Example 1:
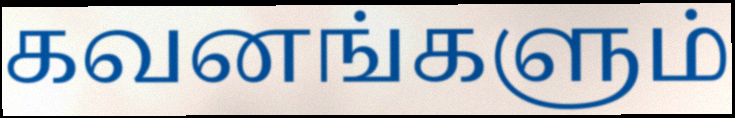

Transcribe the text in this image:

கவனங்களும்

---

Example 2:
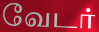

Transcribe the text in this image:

வேடர்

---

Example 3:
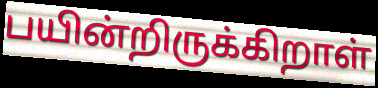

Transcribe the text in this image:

பயின்றிருக்கிறாள்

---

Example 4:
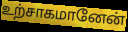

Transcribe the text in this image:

உற்சாகமானேன்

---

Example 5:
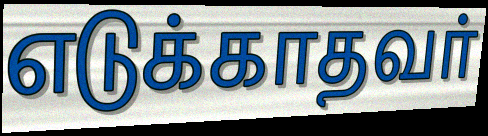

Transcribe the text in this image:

எடுக்காதவர்